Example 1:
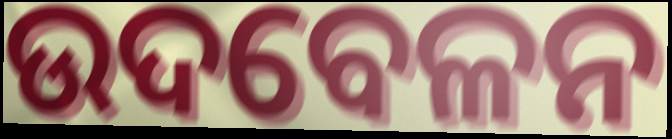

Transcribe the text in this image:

ଉଦବେଳନ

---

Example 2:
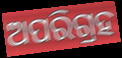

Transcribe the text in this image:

ଅପରିଗ୍ରହ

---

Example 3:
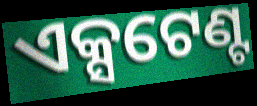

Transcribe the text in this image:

ଏକ୍ସଟେଣ୍ଟ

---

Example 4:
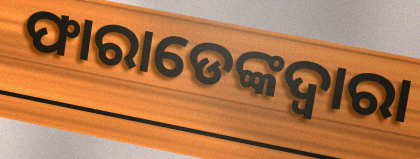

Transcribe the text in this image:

ଫାରାଡେଙ୍କଦ୍ୱାରା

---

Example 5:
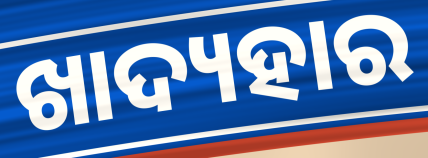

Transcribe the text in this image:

ଖାଦ୍ୟହାର